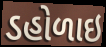
ડહોળાઇ